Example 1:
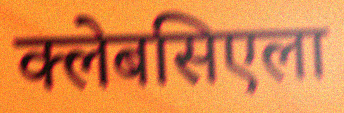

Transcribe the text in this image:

क्लेबसिएला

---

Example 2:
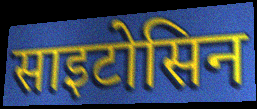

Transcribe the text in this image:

साइटोसिन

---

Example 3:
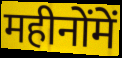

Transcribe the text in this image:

महीनोंमें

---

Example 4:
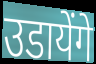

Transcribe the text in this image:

उडायेंगे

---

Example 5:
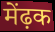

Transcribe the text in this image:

मेंढ़क